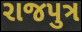
રાજપુત્ર